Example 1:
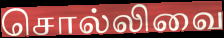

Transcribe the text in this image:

சொல்லிவை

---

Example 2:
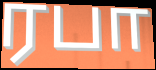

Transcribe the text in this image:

ரபா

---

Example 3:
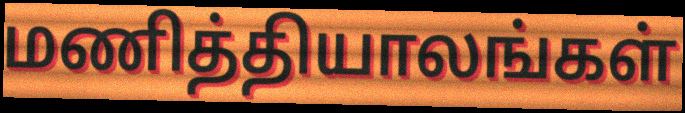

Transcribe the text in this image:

மணித்தியாலங்கள்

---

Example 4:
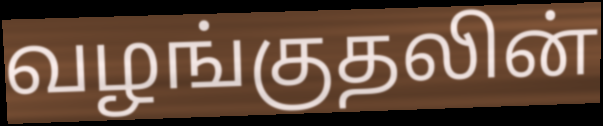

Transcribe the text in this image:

வழங்குதலின்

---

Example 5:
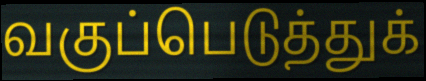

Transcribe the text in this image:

வகுப்பெடுத்துக்